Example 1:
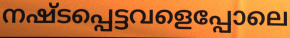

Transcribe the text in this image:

നഷ്ടപ്പെട്ടവളെപ്പോലെ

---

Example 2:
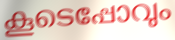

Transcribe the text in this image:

കൂടെപ്പോവും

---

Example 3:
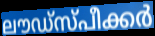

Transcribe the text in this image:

ലൗഡ്സ്പീക്കർ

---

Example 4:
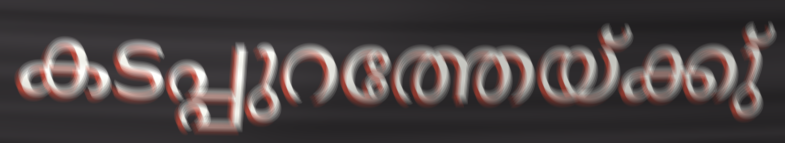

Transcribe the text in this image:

കടപ്പുറത്തേയ്ക്കു്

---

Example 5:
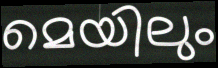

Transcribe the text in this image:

മെയിലും